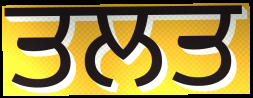
ਤਲਤ